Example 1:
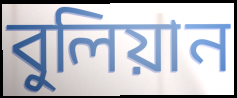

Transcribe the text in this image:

বুলিয়ান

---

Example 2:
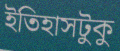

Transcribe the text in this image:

ইতিহাসটুকু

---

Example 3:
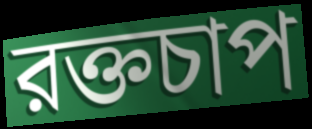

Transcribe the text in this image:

রক্তচাপ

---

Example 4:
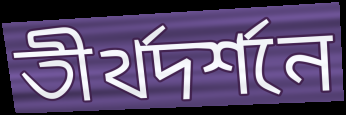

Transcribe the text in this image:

তীর্থদর্শনে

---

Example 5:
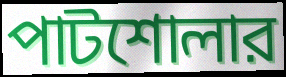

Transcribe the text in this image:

পাটশোলার